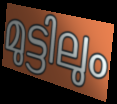
മുട്ടിലും